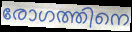
രോഗത്തിനെ